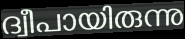
ദ്വീപായിരുന്നു